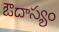
ఔదాస్యం